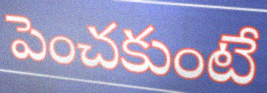
పెంచకుంటే